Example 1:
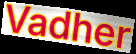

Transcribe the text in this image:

Vadher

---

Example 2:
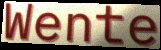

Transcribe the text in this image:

Wente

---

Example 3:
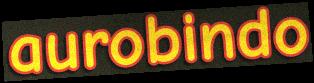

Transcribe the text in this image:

aurobindo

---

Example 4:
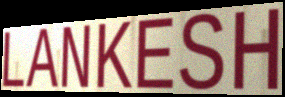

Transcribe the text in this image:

LANKESH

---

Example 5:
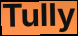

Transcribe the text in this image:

Tully